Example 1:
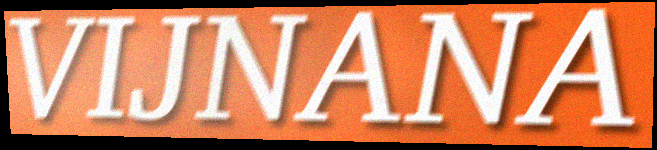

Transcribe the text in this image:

VIJNANA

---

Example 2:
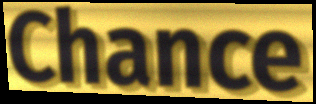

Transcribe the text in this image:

Chance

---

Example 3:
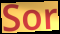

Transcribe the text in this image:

Sor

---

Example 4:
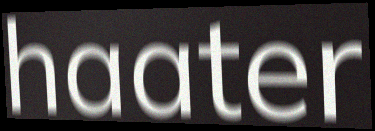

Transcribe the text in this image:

haater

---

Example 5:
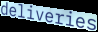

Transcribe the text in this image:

deliveries